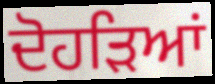
ਦੋਹੜਿਆਂ